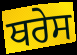
ਥਰੇਸ